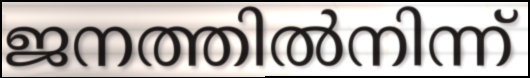
ജനത്തിൽനിന്ന്